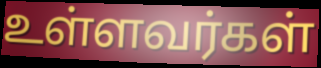
உள்ளவர்கள்